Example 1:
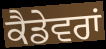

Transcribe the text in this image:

ਕੈਡੇਵਰਾਂ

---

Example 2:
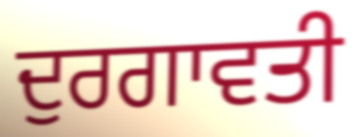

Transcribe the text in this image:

ਦੁਰਗਾਵਤੀ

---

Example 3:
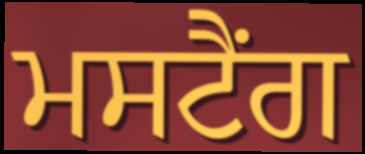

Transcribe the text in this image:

ਮਸਟੈਂਗ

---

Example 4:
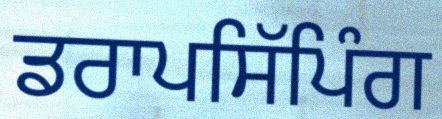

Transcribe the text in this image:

ਡਰਾਪਸਿੱਪਿੰਗ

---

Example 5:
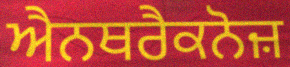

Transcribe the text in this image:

ਐਨਥਰੈਕਨੋਜ਼